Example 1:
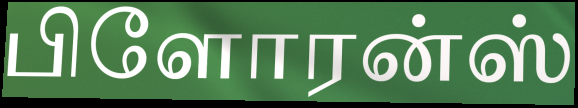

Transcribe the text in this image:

பிளோரன்ஸ்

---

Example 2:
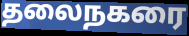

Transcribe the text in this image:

தலைநகரை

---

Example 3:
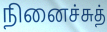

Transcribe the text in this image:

நினைச்சுத்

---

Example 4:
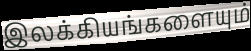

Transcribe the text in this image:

இலக்கியங்களையும்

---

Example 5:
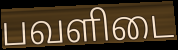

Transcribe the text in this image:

பவளிடை